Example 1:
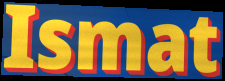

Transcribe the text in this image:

Ismat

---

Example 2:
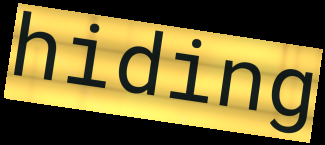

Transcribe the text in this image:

hiding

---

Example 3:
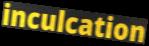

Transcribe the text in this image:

inculcation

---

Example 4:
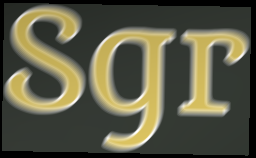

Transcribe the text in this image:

Sgr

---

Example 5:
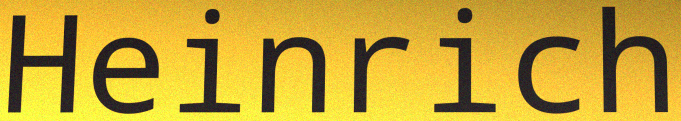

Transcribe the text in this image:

Heinrich